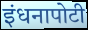
इंधनापोटी